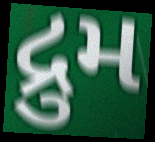
દ્રુમ